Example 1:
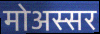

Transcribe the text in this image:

मोअस्सर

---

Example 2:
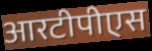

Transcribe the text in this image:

आरटीपीएस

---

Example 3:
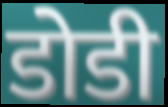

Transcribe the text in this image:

डोडी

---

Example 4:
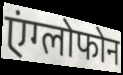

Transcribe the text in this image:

एंग्लोफोन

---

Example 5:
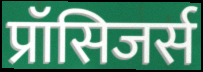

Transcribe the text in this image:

प्रॉसिजर्स